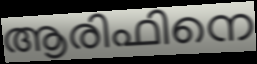
ആരിഫിനെ